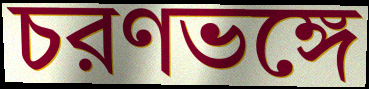
চরণভঙ্গে